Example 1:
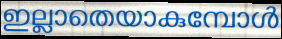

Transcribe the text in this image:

ഇല്ലാതെയാകുമ്പോൾ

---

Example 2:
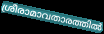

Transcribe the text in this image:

ശ്രീരാമാവതാരത്തിൽ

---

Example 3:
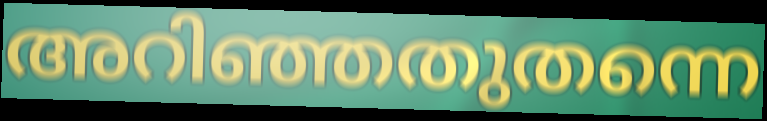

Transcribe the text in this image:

അറിഞ്ഞതുതന്നെ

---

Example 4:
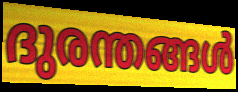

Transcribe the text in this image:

ദുരന്തങ്ങൾ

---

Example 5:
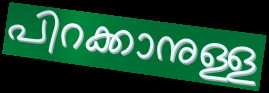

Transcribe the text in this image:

പിറക്കാനുള്ള